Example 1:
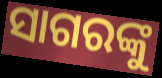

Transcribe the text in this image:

ସାଗରଙ୍କୁ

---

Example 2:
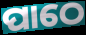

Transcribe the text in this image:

ପାଠେ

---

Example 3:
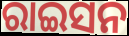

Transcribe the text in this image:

ରାଇସନ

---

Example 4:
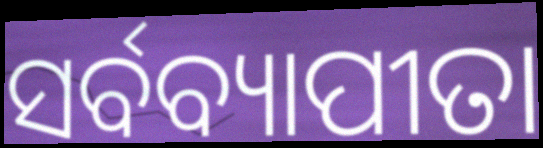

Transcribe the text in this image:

ସର୍ବବ୍ୟାପୀତା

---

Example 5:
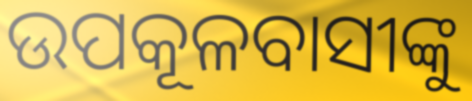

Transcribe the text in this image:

ଉପକୂଳବାସୀଙ୍କୁ